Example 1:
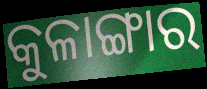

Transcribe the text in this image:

କୁଳାଙ୍ଗାର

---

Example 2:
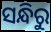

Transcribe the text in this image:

ସନ୍ଧିରୁ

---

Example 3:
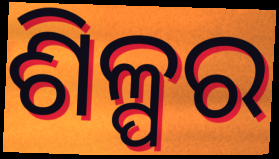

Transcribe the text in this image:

ଶିଳ୍ପର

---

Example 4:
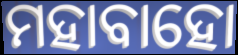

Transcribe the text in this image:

ମହାବାହୋ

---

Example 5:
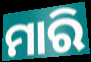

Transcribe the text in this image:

ମାରି